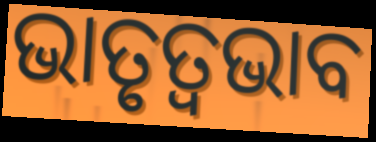
ଭାତୃତ୍ବଭାବ